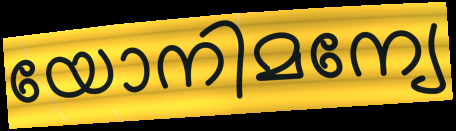
യോനിമന്യേ